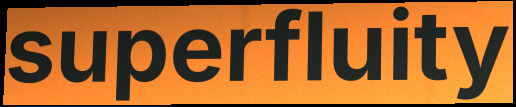
superfluity